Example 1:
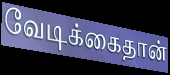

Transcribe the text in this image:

வேடிக்கைதான்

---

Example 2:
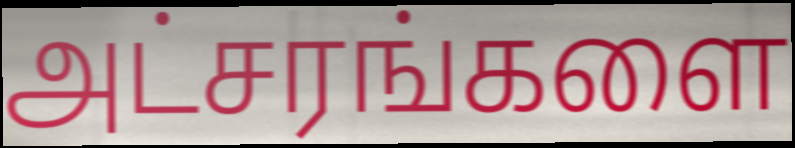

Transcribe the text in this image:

அட்சரங்களை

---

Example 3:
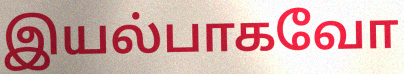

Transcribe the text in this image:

இயல்பாகவோ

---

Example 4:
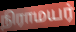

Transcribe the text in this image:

நிராமயர்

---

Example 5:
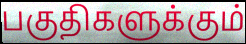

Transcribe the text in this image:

பகுதிகளுக்கும்